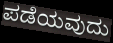
ಪಡೆಯವುದು